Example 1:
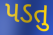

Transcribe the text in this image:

પડતુ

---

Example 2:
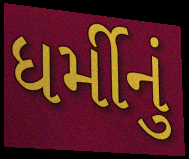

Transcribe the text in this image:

ધર્મીનું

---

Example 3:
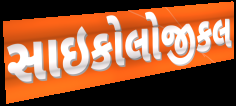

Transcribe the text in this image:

સાઇકોલોજીકલ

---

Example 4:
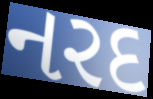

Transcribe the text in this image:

નરદ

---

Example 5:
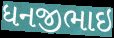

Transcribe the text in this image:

ધનજીભાઇ